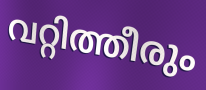
വറ്റിത്തീരും